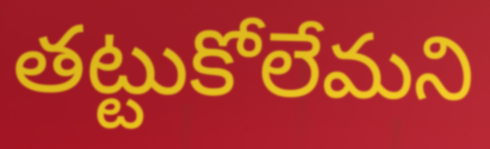
తట్టుకోలేమని